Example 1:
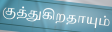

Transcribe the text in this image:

குத்துகிறதாயும்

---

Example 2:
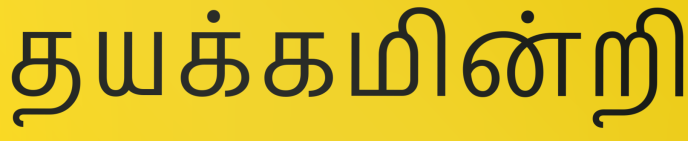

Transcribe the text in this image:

தயக்கமின்றி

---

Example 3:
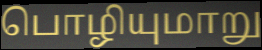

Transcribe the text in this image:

பொழியுமாறு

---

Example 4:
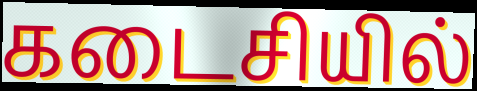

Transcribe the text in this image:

கடைசியில்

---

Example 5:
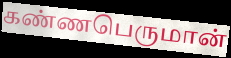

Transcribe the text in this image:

கண்ணபெருமான்